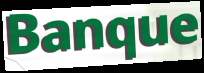
Banque